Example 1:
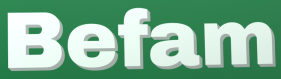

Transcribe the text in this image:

Befam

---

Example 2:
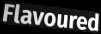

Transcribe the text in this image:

Flavoured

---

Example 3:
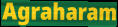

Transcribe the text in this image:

Agraharam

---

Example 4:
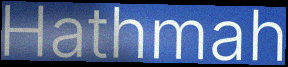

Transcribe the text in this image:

Hathmah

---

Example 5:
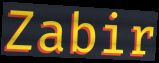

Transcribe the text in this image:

Zabir